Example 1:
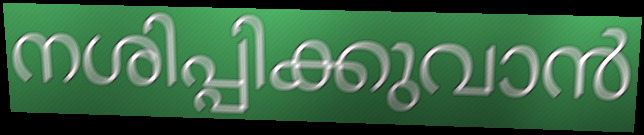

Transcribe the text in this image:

നശിപ്പിക്കുവാൻ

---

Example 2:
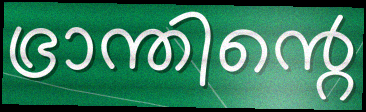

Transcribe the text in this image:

ഭ്രാന്തിന്റെ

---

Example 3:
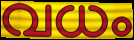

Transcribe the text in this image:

വധം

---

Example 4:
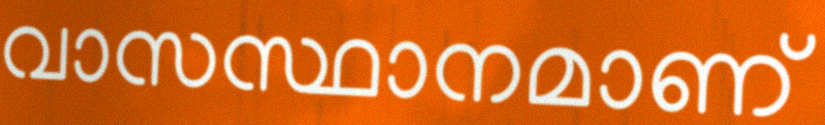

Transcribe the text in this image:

വാസസ്ഥാനമാണ്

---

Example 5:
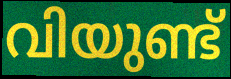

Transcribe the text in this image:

വിയുണ്ട്